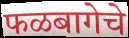
फळबागेचे